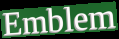
Emblem